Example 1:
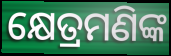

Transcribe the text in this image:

କ୍ଷେତ୍ରମଣିଙ୍କ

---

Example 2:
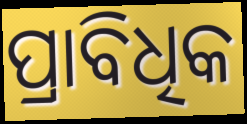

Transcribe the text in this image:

ପ୍ରାବିଧିକ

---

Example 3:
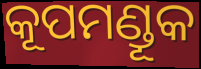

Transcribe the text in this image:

କୂପମଣ୍ଡୂକ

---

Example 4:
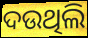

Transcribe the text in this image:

ଦଉଥିଲି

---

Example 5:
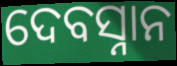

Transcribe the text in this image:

ଦେବସ୍ନାନ